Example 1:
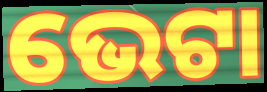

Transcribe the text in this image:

ଭେଟା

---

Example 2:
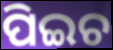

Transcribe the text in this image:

ପିଇଚ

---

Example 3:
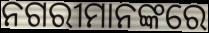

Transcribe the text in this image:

ନଗରୀମାନଙ୍କରେ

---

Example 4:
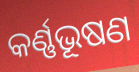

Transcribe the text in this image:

କର୍ଣ୍ଣଭୂଷଣ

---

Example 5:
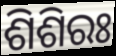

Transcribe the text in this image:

ଶିଶିରଃ